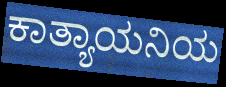
ಕಾತ್ಯಾಯನಿಯ